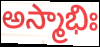
అస్మాభిః